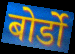
बोर्डो